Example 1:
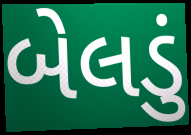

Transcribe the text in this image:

બેલડું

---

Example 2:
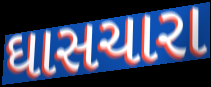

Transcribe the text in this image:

ઘાસચારા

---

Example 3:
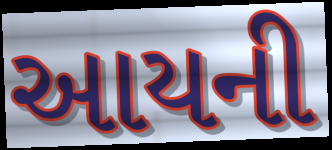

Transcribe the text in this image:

આયની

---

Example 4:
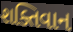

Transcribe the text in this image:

શક્તિવાન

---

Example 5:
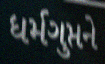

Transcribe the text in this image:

ધર્મગુપ્તને